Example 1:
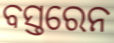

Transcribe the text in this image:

ବସ୍ତରେନ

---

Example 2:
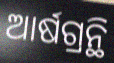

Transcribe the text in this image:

ଆର୍ଷଗ୍ରନ୍ଥି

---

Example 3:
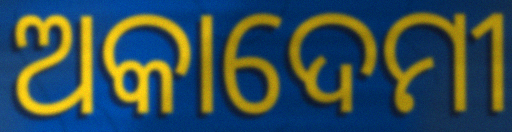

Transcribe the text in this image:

ଅକାଦେମୀ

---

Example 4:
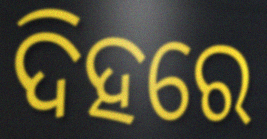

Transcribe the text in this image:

ଦିହରେ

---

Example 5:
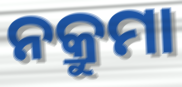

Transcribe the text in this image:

ନକ୍ରୁମା